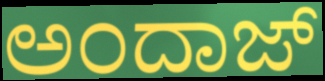
ಅಂದಾಜ್